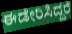
ಈಡೇರಿಸಿದ್ದರೆ